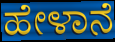
ಹೇಳಾನೆ